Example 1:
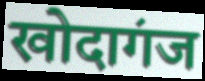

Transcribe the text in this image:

खोदागंज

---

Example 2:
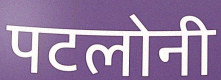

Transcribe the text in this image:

पटलोनी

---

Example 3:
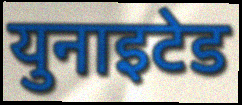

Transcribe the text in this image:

युनाइटेड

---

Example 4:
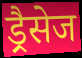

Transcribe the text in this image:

ड्रैसेज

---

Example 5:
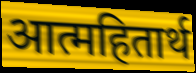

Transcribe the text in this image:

आत्महितार्थ